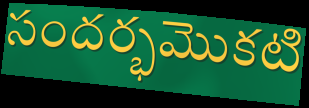
సందర్భమొకటి